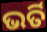
ଭର୍ତି